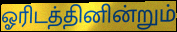
ஓரிடத்தினின்றும்